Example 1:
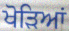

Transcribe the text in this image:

ਖੋੜਿਆਂ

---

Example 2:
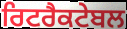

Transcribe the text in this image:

ਰਿਟਰੈਕਟੇਬਲ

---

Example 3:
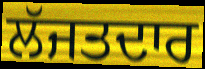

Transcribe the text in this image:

ਲੱਜਤਦਾਰ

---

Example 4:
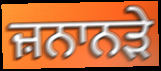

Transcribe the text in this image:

ਜ਼ਨਾਨੜੇ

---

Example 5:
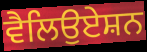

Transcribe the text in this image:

ਵੈਲਿਉਏਸ਼ਨ